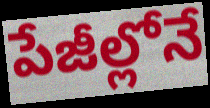
పేజీల్లోనే